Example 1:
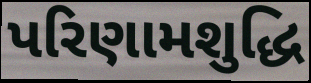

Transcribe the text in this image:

પરિણામશુદ્ધિ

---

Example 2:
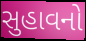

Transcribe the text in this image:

સુહાવનો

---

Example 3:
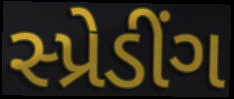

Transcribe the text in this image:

સ્પ્રેડીંગ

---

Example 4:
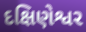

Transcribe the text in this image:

દક્ષિણેશ્વર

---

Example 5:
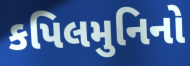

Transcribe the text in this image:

કપિલમુનિનો